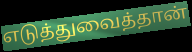
எடுத்துவைத்தான்